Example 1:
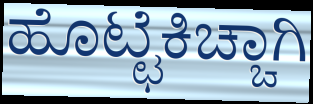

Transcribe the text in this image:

ಹೊಟ್ಟೆಕಿಚ್ಚಾಗಿ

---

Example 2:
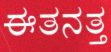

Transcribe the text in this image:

ಈತನತ್ತ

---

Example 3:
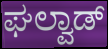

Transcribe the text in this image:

ಘಲ್ವಾಡ್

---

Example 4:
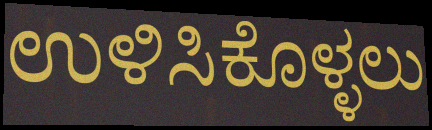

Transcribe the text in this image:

ಉಳಿಸಿಕೊಳ್ಳಲು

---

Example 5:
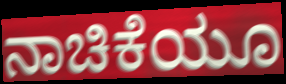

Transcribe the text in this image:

ನಾಚಿಕೆಯೂ